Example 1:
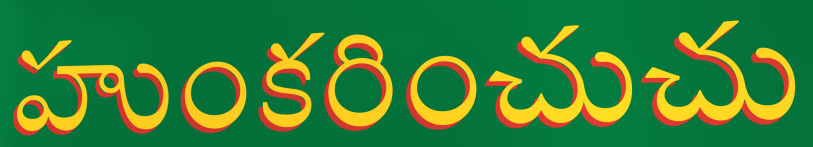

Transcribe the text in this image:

హుంకరించుచు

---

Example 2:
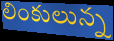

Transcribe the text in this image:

లింకులున్న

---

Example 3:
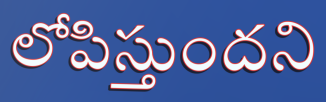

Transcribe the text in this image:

లోపిస్తుందని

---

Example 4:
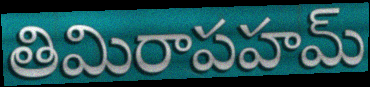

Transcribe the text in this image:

తిమిరాపహమ్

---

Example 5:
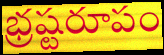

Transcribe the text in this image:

భ్రష్టరూపం